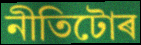
নীতিটোৰ